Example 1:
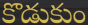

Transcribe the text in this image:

కొడుకుం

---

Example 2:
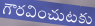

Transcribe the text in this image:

గౌరవించుటకు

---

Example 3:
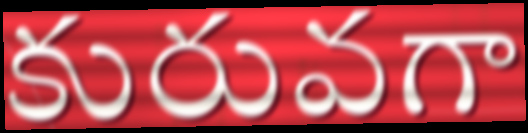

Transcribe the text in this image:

కురువగా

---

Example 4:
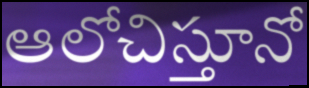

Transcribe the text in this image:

ఆలోచిస్తూనో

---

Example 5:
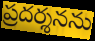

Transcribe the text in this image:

ప్రదర్శనను